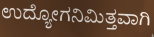
ಉದ್ಯೋಗನಿಮಿತ್ತವಾಗಿ